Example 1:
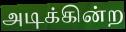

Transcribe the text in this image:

அடிக்கின்ற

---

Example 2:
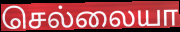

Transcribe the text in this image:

செல்லையா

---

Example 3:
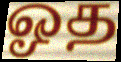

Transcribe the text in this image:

ஓத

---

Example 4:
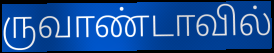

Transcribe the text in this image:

ருவாண்டாவில்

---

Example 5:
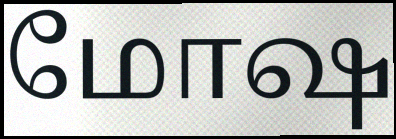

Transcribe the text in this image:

மோஷ